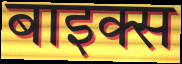
बाइक्स